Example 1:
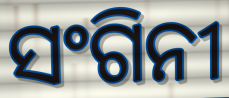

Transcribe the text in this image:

ସଂଗିନୀ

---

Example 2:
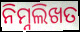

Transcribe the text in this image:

ନିମ୍ନଲିଖତ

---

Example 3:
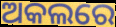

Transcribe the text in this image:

ଅକଲରେ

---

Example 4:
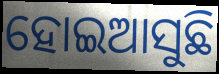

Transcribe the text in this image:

ହୋଇଆସୁଛି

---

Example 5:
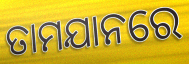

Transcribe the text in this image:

ତାମଯାନରେ